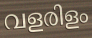
വളരിളം